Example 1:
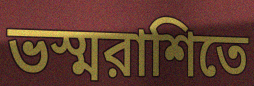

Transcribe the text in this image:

ভস্মরাশিতে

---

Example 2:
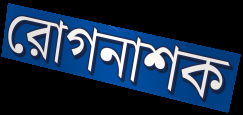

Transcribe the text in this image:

রোগনাশক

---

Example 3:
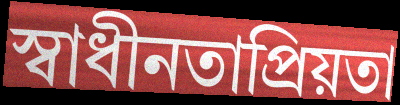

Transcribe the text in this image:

স্বাধীনতাপ্রিয়তা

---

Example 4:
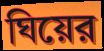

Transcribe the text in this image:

ঘিয়ের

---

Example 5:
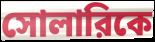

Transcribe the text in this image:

সোলারিকে